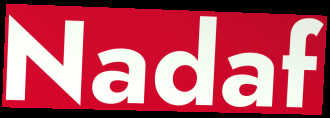
Nadaf